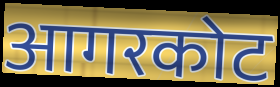
आगरकोट